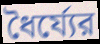
ধৈর্য্যের